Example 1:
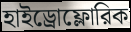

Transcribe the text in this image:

হাইড্রোফ্লোরিক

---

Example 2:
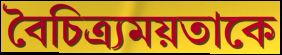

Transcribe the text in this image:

বৈচিত্র্যময়তাকে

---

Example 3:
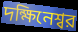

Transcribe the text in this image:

দক্ষিনেশ্বর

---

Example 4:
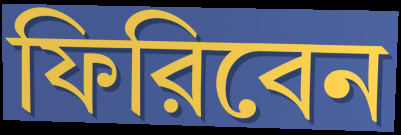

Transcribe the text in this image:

ফিরিবেন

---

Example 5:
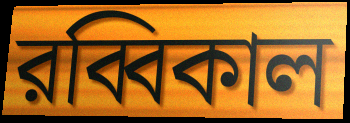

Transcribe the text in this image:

রব্বিকাল